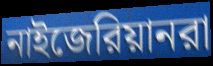
নাইজেরিয়ানরা